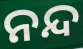
ନନ୍ଦ